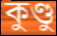
কুণ্ডু